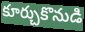
కూర్చుకొనుడి